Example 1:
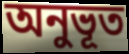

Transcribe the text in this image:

অনুভূত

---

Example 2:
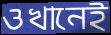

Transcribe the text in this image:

ওখানেই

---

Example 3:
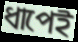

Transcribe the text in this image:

ধাপেই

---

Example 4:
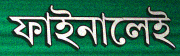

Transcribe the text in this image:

ফাইনালেই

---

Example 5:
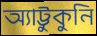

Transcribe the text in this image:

অ্যাট্টুকুনি